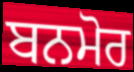
ਬਨਮੋਰ